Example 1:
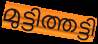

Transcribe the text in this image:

മുട്ടിത്തട്ടി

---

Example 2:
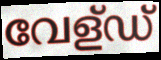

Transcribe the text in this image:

വേള്ഡ്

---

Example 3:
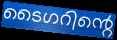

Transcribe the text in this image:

ടൈഗറിന്റെ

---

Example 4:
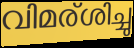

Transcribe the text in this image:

വിമര്ശിച്ചു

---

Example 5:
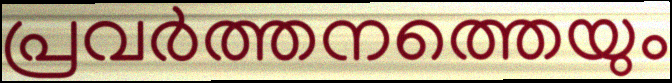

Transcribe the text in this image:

പ്രവർത്തനത്തെയും